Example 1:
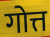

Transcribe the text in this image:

गोत्त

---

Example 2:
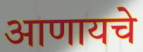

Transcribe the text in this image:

आणायचे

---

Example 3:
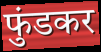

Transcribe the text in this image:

फुंडकर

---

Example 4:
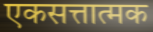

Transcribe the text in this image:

एकसत्तात्मक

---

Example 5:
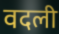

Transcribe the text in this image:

वदली